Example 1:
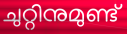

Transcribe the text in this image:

ചുറ്റിനുമുണ്ട്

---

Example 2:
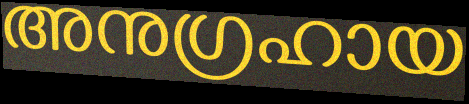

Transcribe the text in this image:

അനുഗ്രഹായ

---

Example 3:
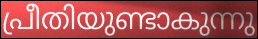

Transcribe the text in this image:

പ്രീതിയുണ്ടാകുന്നു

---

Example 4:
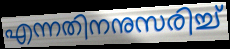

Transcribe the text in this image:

എന്നതിനനുസരിച്ച്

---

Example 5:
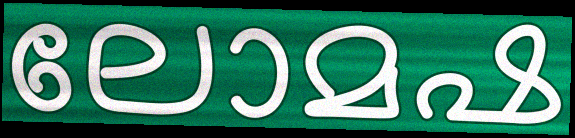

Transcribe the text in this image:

ലോമഷ